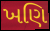
ખણિ